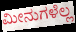
ಮೀನುಗಳೆಲ್ಲ